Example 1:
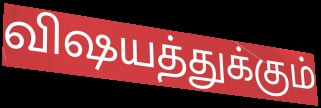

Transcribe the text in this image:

விஷயத்துக்கும்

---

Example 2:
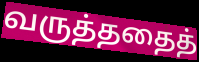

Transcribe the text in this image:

வருத்ததைத்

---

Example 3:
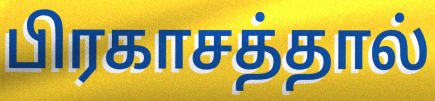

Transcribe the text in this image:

பிரகாசத்தால்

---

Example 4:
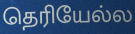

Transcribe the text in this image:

தெரியேல்ல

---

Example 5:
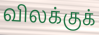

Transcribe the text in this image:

விலக்குக்